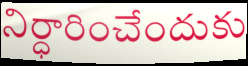
నిర్ధారించేందుకు